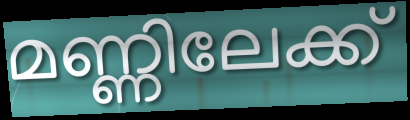
മണ്ണിലേക്ക്